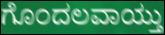
ಗೊಂದಲವಾಯ್ತು